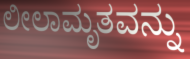
ಲೀಲಾಮೃತವನ್ನು